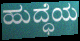
ಹುದ್ಧೆಯ